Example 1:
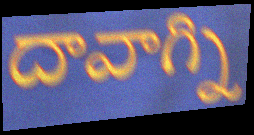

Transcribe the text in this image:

దావాగ్ని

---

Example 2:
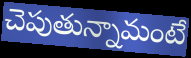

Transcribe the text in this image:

చెపుతున్నామంటే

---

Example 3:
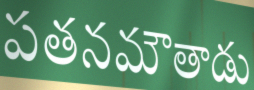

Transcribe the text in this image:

పతనమౌతాడు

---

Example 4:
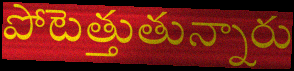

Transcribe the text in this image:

పోటెత్తుతున్నారు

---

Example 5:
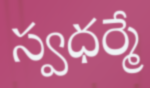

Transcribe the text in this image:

స్వధర్మే